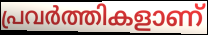
പ്രവർത്തികളാണ്